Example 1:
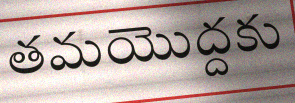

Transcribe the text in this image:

తమయొద్దకు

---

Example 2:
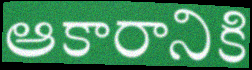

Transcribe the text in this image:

ఆకారానికి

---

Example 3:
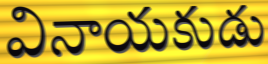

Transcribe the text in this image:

వినాయకుడు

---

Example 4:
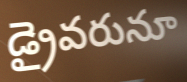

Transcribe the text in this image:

డ్రైవరునూ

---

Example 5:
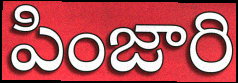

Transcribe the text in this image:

పింజారి